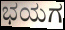
ಭಯಗ